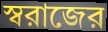
স্বরাজের